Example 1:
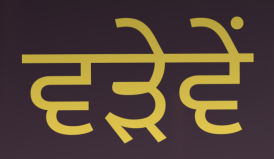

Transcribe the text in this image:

ਵੜੇਵੇਂ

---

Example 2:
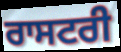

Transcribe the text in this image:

ਰਾਸਟਰੀ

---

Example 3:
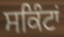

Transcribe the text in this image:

ਸਕਿੰਟਾਂ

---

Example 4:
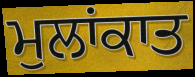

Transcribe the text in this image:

ਮੁਲਾਂਕਾਤ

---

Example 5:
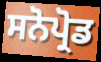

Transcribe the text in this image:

ਸਨੋਪ੍ਰੋਡ